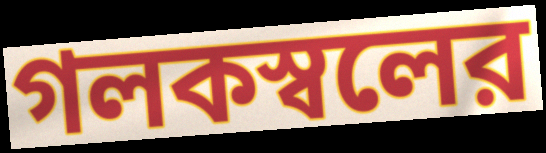
গলকস্বলের